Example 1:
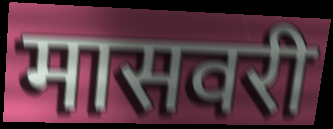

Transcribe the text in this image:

मासवरी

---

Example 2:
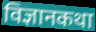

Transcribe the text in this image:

विज्ञानकथा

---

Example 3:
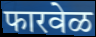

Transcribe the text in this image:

फारवेळ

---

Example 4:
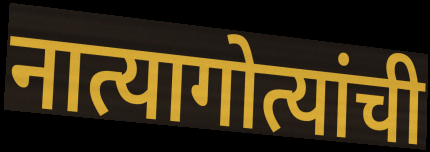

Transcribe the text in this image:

नात्यागोत्यांची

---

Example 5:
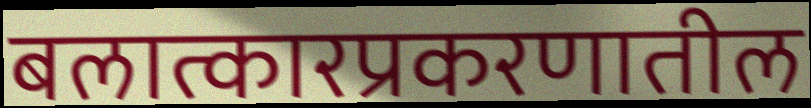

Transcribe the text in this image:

बलात्कारप्रकरणातील